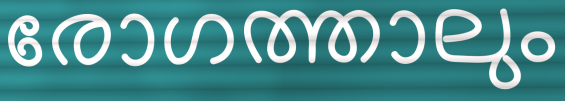
രോഗത്താലും